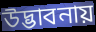
উদ্ভাবনায়